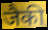
जैकी